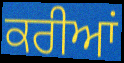
ਕਰੀਆਂ